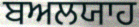
ਬਅਲਯਾਹ